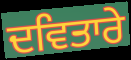
ਦਵਿਤਾਰੇ